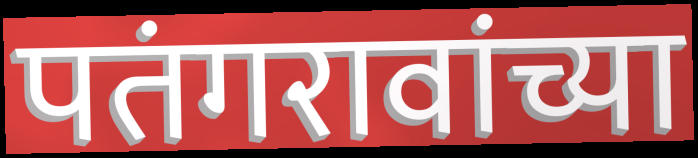
पतंगरावांच्या